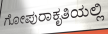
ಗೋಪುರಾಕೃತಿಯಲ್ಲಿ